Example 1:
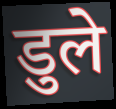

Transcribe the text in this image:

डुले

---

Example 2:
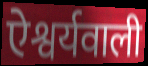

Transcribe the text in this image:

ऐश्वर्यवाली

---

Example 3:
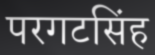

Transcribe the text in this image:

परगटसिंह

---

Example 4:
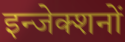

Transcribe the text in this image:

इन्जेक्शनों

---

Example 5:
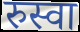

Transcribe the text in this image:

रुस्वा